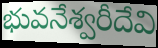
భువనేశ్వరీదేవి